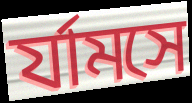
র্যামসে